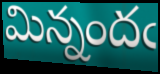
మిన్నందఁ